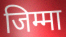
जिम्मा